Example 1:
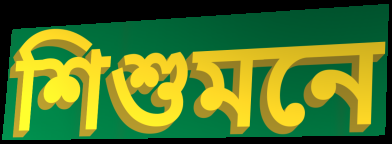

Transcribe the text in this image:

শিশুমনে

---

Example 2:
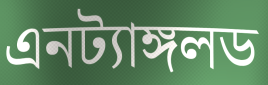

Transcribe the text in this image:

এনট্যাঙ্গলড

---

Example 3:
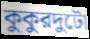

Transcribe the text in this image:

কুকুরদুটো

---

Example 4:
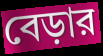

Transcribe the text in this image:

বেড়ার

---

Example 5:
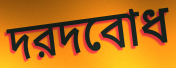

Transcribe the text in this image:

দরদবোধ